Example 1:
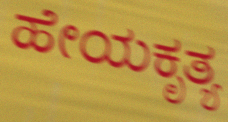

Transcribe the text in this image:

ಹೇಯಕೃತ್ಯ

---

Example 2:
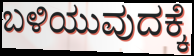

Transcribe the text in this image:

ಬಳಿಯುವುದಕ್ಕೆ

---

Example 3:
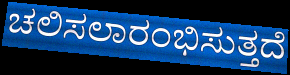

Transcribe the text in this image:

ಚಲಿಸಲಾರಂಭಿಸುತ್ತದೆ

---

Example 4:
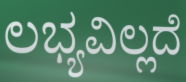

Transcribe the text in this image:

ಲಭ್ಯವಿಲ್ಲದೆ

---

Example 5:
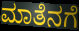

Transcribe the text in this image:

ಮಾತೆನಗೆ